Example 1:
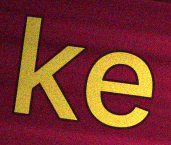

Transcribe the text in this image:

ke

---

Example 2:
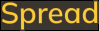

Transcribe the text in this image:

Spread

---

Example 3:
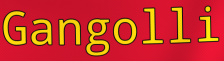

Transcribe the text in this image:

Gangolli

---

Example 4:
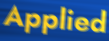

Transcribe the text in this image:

Applied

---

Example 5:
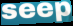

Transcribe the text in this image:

seep